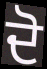
ਦੋ